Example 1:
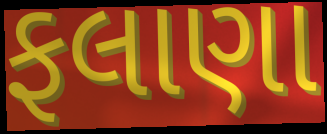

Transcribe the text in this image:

ફલાણા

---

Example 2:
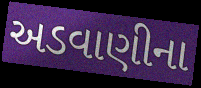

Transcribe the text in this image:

અડવાણીના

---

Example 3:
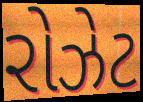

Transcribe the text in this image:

રોઝેટ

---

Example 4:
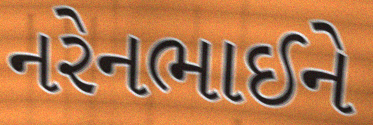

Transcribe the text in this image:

નરેનભાઈને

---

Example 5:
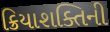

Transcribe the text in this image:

ક્રિયાશક્તિની